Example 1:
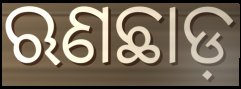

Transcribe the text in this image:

ଋଣଛାଡ଼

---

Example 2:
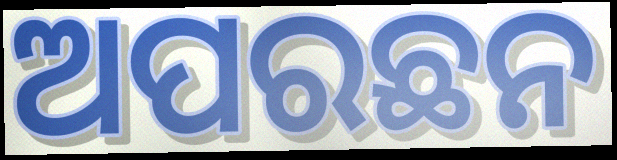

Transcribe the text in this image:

ଅପରଛନ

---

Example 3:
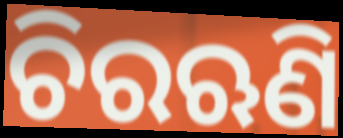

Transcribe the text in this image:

ଚିରଋଣି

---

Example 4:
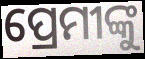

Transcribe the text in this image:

ପ୍ରେମୀଙ୍କୁ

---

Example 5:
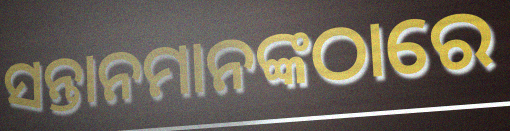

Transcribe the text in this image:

ସନ୍ତାନମାନଙ୍କଠାରେ